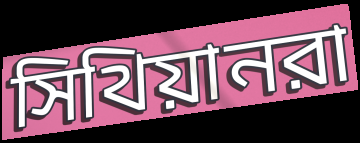
সিথিয়ানরা